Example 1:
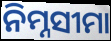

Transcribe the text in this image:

ନିମ୍ନସୀମା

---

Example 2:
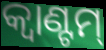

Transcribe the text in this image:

କ୍ଵାଣ୍ଟମ୍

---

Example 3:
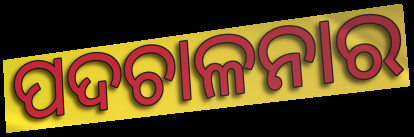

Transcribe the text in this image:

ପଦଚାଳନାର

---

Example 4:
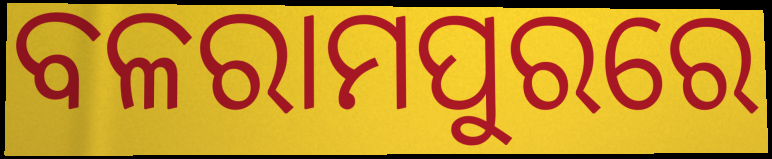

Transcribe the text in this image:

ବଳରାମପୁରରେ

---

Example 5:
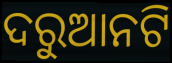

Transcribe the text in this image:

ଦରୁଆନଟି